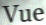
Vue